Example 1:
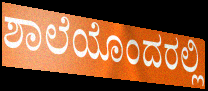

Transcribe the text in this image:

ಶಾಲೆಯೊಂದರಲ್ಲಿ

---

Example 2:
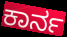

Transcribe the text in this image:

ಕಾರ್ನ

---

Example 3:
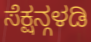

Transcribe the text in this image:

ಸೆಕ್ಷನ್ಗಳಡಿ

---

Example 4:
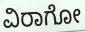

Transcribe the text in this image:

ವಿರಾಗೋ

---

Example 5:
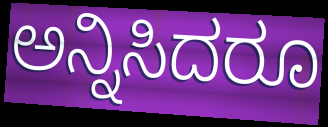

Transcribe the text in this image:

ಅನ್ನಿಸಿದರೂ